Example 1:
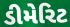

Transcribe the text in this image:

ડીમેરિટ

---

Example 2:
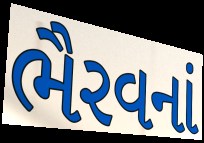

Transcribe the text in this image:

ભૈરવનાં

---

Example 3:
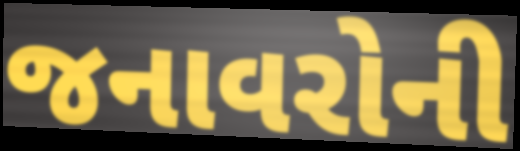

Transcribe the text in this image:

જનાવરોની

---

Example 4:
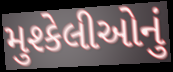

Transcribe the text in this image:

મુશ્કેલીઓનું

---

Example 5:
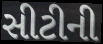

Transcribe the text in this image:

સીટીની